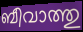
ബീവാത്തു